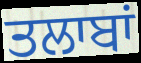
ਤਲਾਬਾਂ